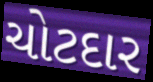
ચોટદાર